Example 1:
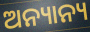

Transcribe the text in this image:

ଅନ୍ୟାନ୍ୟ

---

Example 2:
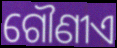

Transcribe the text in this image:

ଗୌଣୀଏ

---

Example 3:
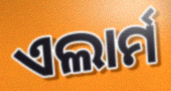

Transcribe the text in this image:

ଏଲାର୍ମ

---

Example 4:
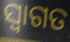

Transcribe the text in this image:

ସ୍ୱାଗତ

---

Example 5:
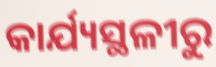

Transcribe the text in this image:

କାର୍ଯ୍ୟସ୍ଥଳୀରୁ